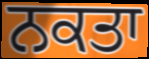
ਨਕਤਾ